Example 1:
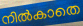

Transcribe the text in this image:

നിൽകാതെ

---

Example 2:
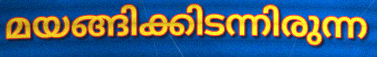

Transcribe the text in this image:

മയങ്ങിക്കിടന്നിരുന്ന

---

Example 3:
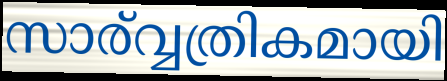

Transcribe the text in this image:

സാര്വ്വത്രികമായി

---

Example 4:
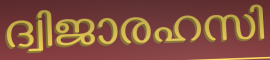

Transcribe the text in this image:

ദ്വിജാരഹസി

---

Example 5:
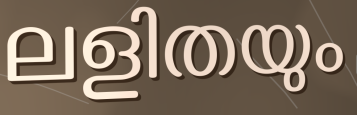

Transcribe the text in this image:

ലളിതയും